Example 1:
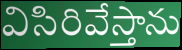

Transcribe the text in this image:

విసిరివేస్తాను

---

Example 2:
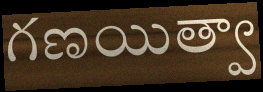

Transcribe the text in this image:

గణయిత్వా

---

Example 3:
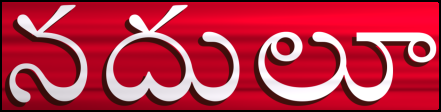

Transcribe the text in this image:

నదులూ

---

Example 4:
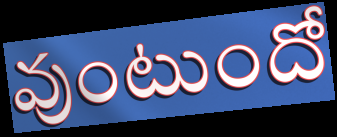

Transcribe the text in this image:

వుంటుందో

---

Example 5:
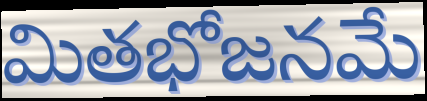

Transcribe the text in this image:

మితభోజనమే